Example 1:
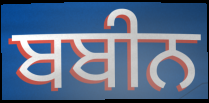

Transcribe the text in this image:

ਬਬੀਨ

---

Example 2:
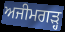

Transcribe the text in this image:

ਅਜੀਮਗੜ੍ਹ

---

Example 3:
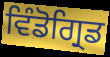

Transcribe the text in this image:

ਵਿੰਡੋਗ੍ਰਿਡ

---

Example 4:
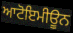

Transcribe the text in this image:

ਆਟੋਇਮੀਊਨ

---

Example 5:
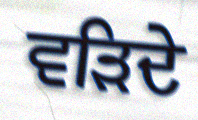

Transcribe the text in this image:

ਵੜਿਦੇ